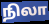
நிலா